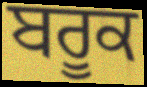
ਬਰੂਕ